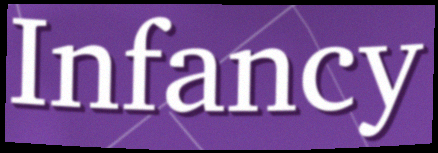
Infancy